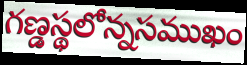
గణ్డస్థలోన్నసముఖం